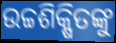
ଉଚ୍ଚଶିକ୍ଷିତଙ୍କୁ